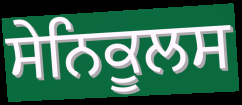
ਸੇਨਿਕੂਲਸ